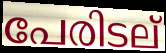
പേരിടല്